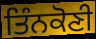
ਤਿੰਨਕੋਣੀ